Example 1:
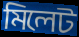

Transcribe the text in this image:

মিলেট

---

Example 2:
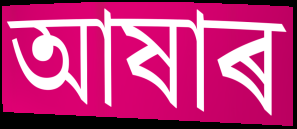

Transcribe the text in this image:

আষাৰ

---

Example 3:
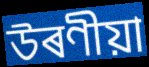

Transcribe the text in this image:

উৰণীয়া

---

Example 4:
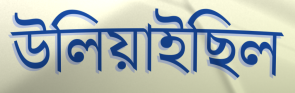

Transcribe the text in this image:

উলিয়াইছিল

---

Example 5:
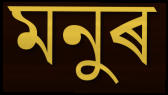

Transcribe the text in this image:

মনুৰ